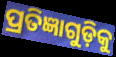
ପ୍ରତିଜ୍ଞାଗୁଡ଼ିକୁ